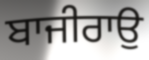
ਬਾਜੀਰਾਉ